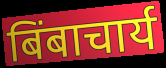
बिंबाचार्य